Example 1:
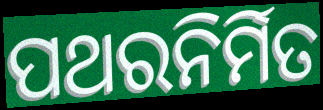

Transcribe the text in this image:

ପଥରନିର୍ମିତ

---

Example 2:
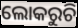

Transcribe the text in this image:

ଲୋକରୁଚି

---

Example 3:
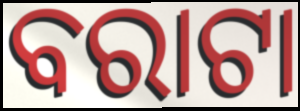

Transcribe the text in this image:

ବରାଟା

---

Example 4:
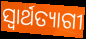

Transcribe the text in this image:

ସ୍ୱାର୍ଥତ୍ୟାଗୀ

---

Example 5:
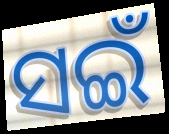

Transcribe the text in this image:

ସଇଁ